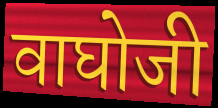
वाघोजी